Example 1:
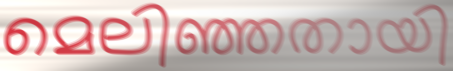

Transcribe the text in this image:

മെലിഞ്ഞതായി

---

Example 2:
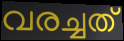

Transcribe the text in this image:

വരച്ചത്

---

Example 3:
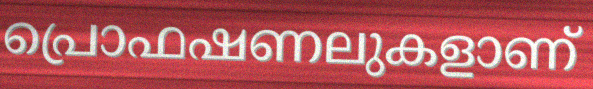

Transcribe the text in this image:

പ്രൊഫഷണലുകളാണ്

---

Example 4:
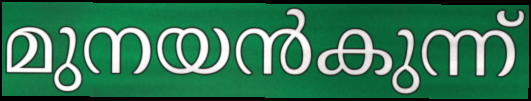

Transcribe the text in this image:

മുനയൻകുന്ന്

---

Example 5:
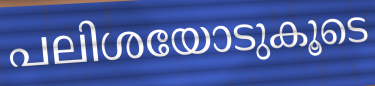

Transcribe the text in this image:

പലിശയോടുകൂടെ